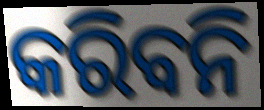
କରିବନି